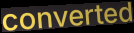
converted